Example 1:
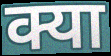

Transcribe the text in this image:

क्या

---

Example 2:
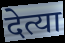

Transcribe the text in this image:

देत्या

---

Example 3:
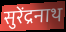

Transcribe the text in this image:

सुरेंद्रनाथ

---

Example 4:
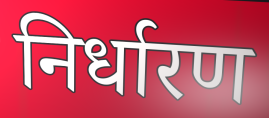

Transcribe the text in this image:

निर्धारण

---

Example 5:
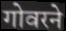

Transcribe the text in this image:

गोवरने